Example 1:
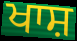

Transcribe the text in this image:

ਖਾਸ਼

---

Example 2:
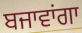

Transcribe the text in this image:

ਬਜਾਵਾਂਗਾ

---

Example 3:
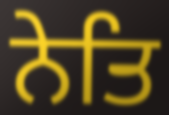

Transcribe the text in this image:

ਨੇਤਿ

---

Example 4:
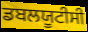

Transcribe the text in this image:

ਡਬਲਯੂਟੀਸੀ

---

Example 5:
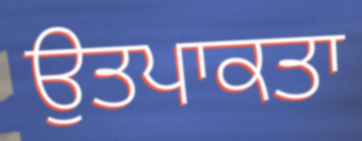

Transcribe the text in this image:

ਉਤਪਾਕਤਾ